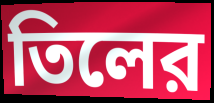
তিলের